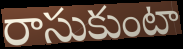
రాసుకుంటా